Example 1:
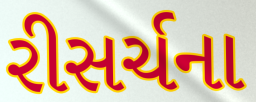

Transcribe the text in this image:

રીસર્ચના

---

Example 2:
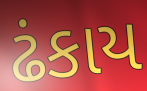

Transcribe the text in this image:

ઢંકાય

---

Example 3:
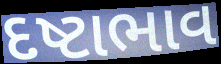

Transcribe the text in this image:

દષ્ટાભાવ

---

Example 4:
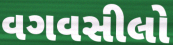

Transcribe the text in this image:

વગવસીલો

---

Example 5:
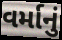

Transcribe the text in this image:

વર્માનું